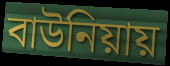
বাউনিয়ায়